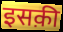
इसक़ी